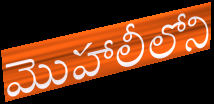
మొహాలీలోని